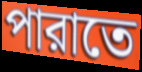
পারাতে